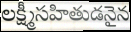
లక్ష్మీసహితుడనైన